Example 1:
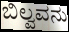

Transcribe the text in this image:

ಬಿಲ್ವವನು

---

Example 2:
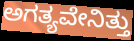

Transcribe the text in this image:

ಅಗತ್ಯವೇನಿತ್ತು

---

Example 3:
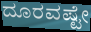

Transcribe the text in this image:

ದೂರವಷ್ಟೇ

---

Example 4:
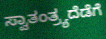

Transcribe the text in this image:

ಸ್ವಾತಂತ್ರ್ಯದೆಡೆಗೆ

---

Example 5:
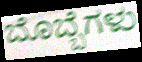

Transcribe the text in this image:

ಬೊಬ್ಬೆಗಳು